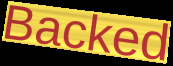
Backed